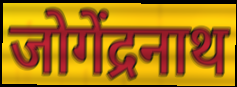
जोगेंद्रनाथ